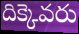
దిక్కెవరు